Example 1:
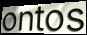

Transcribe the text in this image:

ontos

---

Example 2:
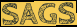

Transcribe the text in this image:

SAGS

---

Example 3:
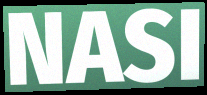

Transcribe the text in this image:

NASI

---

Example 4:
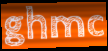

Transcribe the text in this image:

ghmc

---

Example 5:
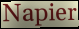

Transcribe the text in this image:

Napier